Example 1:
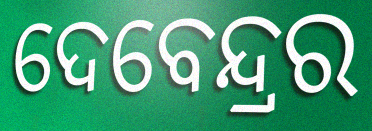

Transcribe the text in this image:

ଦେବେନ୍ଦ୍ରର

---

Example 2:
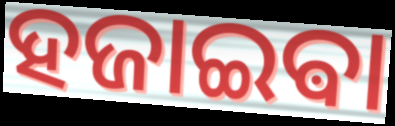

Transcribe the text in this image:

ହଜାଇଵା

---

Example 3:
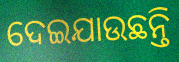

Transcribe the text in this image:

ଦେଇଯାଉଛନ୍ତି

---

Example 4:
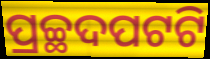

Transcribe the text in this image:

ପ୍ରଚ୍ଛଦପଟଟି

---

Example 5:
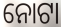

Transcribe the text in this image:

ନୋଟା